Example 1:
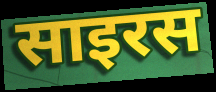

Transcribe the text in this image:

साइरस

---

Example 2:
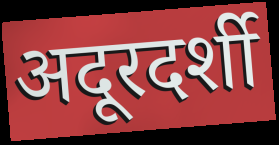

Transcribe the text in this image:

अदूरदर्शी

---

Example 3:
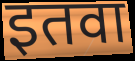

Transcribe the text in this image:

इतवा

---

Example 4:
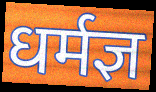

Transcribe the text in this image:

धर्मज्ञ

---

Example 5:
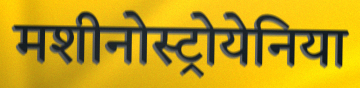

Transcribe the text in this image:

मशीनोस्ट्रोयेनिया